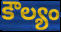
కౌల్యం